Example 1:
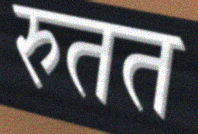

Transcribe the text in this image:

रुतत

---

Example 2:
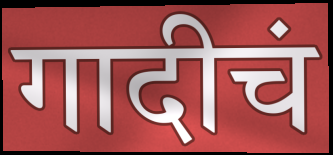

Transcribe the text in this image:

गादीचं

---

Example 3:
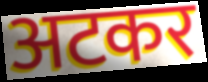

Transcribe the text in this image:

अटकर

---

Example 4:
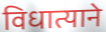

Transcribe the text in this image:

विधात्याने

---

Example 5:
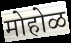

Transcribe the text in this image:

मोहोळ